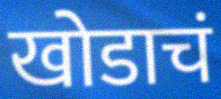
खोडाचं